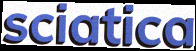
sciatica